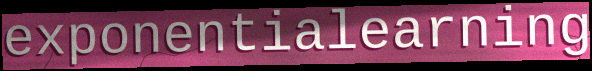
exponentialearning